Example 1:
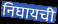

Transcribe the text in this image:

निघायची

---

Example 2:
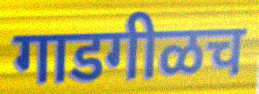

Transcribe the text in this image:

गाडगीळच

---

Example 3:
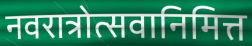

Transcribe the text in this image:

नवरात्रोत्सवानिमित्त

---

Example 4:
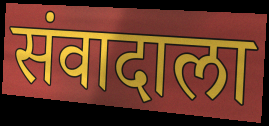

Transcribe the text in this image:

संवादाला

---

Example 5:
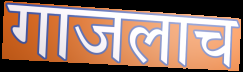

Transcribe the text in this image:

गाजलाच